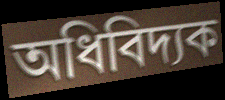
অধিবিদ্যক